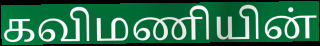
கவிமணியின்